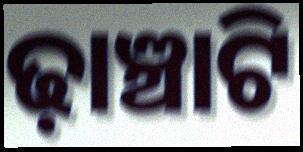
ଢ଼ାଞ୍ଚାଟି